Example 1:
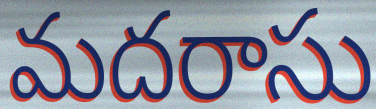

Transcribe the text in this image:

మదరాసు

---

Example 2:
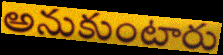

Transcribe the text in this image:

అనుకుంటారు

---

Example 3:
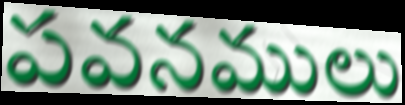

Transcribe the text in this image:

పవనములు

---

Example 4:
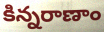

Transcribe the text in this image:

కిన్నరాణాం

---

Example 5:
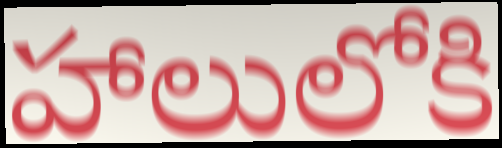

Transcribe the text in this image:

హాలులోకి